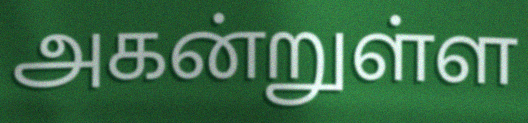
அகன்றுள்ள